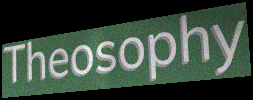
Theosophy